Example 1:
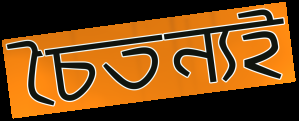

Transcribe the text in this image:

চৈতন্যই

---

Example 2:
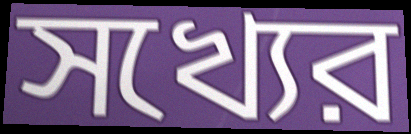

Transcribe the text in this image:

সখ্যের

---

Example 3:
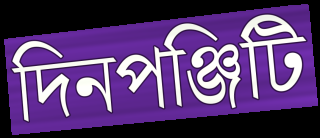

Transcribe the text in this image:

দিনপঞ্জিটি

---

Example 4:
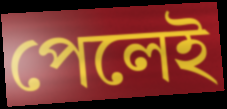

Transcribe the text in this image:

পেলেই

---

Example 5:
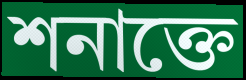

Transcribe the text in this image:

শনাক্তে